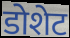
डोशेट